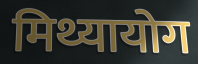
मिथ्यायोग